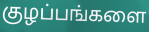
குழப்பங்களை